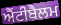
ਐਂਟੀਬੈਲਮ